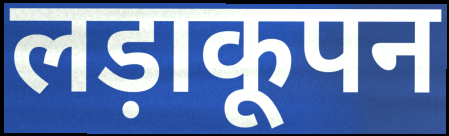
लड़ाकूपन